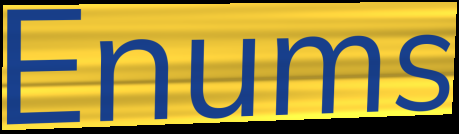
Enums